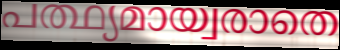
പത്ഥ്യമായ്വരാതെ